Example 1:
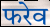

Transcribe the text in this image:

फरेव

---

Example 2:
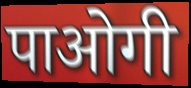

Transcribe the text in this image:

पाओगी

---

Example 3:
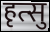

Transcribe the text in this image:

हृत्सु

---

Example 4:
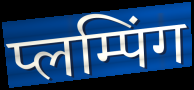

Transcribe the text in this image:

प्लम्पिंग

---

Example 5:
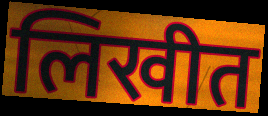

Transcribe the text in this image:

लिखीत